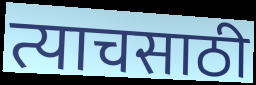
त्याचसाठी